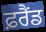
ਫ਼ਰੈਂਡ